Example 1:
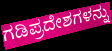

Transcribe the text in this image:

ಗಡಿಪ್ರದೇಶಗಳನ್ನು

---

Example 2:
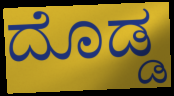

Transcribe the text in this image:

ದೊಡ್ಡ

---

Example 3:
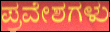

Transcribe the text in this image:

ಪ್ರವೇಶಗಳು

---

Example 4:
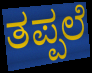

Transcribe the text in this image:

ತಪ್ಪಲೆ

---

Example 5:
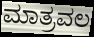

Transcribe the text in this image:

ಮಾತ್ರವಲ